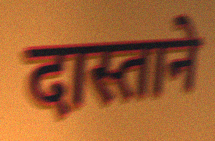
दास्ताने